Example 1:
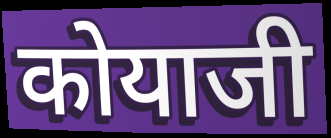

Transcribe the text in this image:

कोयाजी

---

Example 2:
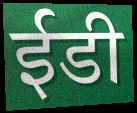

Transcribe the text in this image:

ईडी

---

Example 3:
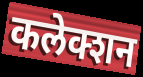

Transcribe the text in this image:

कलेक्शन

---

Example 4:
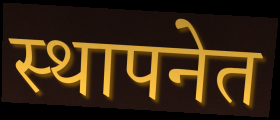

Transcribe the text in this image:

स्थापनेत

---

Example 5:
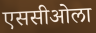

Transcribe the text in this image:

एससीओला